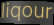
liqour